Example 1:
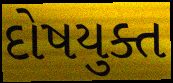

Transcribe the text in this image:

દોષયુક્ત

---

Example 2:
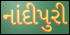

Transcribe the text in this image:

નાંદીપુરી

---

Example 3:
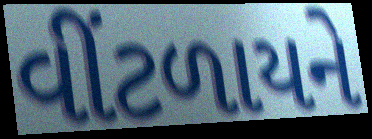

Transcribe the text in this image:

વીંટળાયને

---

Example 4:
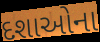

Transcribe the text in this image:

દશાઓના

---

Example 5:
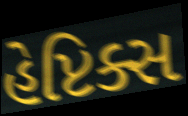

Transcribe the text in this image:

હેપ્ટિક્સ